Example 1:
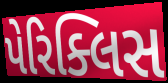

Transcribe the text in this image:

પેરિક્લિસ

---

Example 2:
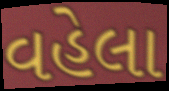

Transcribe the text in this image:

વહેલા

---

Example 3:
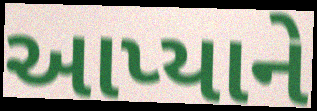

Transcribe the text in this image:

આપ્યાને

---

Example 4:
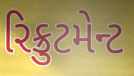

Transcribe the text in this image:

રિક્રુટમેન્ટ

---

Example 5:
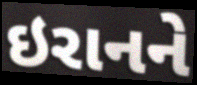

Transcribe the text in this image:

ઇરાનને